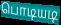
பொடியடி